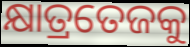
କ୍ଷାତ୍ରତେଜକୁ